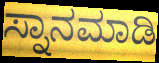
ಸ್ನಾನಮಾಡಿ